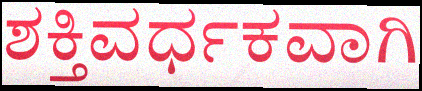
ಶಕ್ತಿವರ್ಧಕವಾಗಿ